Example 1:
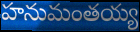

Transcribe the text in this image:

హనుమంతయ్య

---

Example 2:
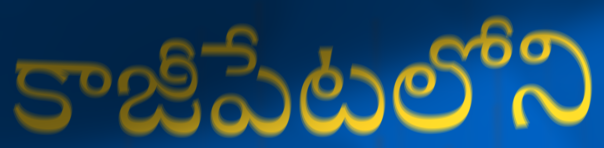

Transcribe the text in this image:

కాజీపేటలోని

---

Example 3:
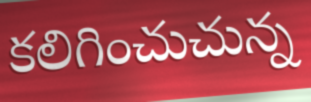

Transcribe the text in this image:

కలిగించుచున్న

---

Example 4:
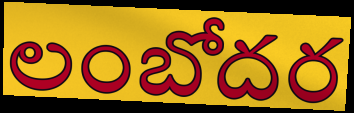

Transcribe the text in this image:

లంబోదర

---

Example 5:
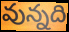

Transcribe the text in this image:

వున్నది